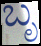
ಬೃ